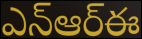
ఎన్ఆర్ఈ